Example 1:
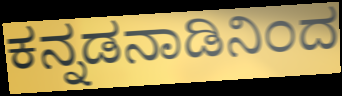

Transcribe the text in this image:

ಕನ್ನಡನಾಡಿನಿಂದ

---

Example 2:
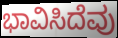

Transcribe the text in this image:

ಭಾವಿಸಿದೆವು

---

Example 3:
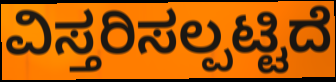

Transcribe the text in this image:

ವಿಸ್ತರಿಸಲ್ಪಟ್ಟಿದೆ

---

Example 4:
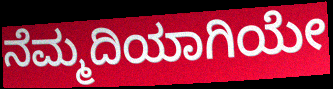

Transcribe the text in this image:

ನೆಮ್ಮದಿಯಾಗಿಯೇ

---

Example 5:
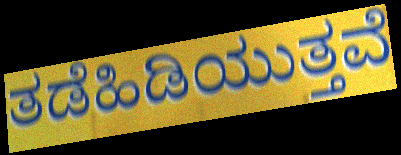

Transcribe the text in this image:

ತಡೆಹಿಡಿಯುತ್ತವೆ